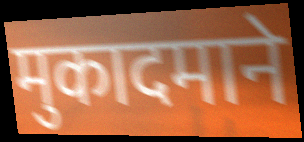
मुकादमाने